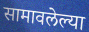
सामावलेल्या